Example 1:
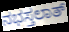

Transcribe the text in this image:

ನಭಸ್ತಲಾತ್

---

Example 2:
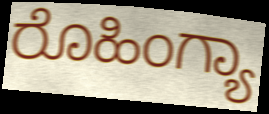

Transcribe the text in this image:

ರೊಹಿಂಗ್ಯಾ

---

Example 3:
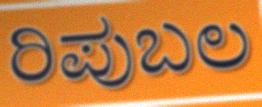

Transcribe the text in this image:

ರಿಪುಬಲ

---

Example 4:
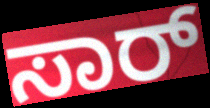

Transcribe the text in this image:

ಸಾರ್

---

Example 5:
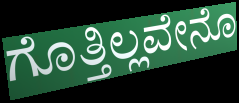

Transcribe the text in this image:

ಗೊತ್ತಿಲ್ಲವೇನೊ